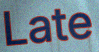
Late